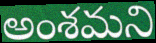
అంశమని